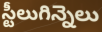
స్టీలుగిన్నెలు